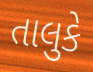
તાલુકે